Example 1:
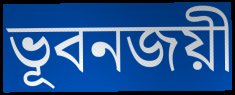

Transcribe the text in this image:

ভূবনজয়ী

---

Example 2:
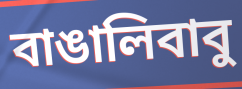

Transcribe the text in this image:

বাঙালিবাবু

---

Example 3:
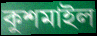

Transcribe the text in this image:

কুশমাইল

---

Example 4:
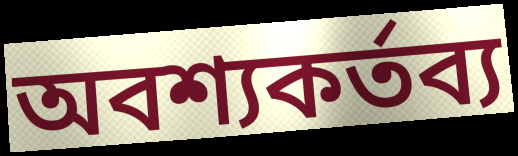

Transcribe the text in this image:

অবশ্যকর্তব্য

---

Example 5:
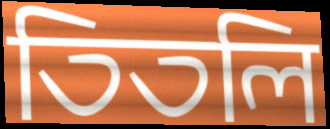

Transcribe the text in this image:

তিতলি